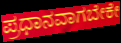
ಪ್ರಧಾನವಾಗಬೇಕೇ